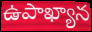
ఉపాఖ్యాన